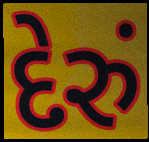
દેરું